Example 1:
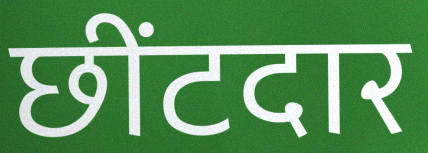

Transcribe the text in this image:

छींटदार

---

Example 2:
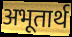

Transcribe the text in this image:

अभूतार्थ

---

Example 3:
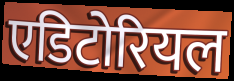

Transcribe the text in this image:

एडिटोरियल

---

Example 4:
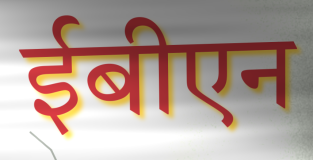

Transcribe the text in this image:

ईबीएन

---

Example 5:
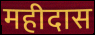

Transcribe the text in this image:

महीदास